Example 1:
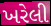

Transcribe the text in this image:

ખરેલી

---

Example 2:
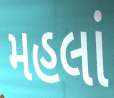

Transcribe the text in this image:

મહલાં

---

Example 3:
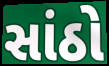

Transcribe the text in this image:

સાંઠો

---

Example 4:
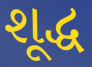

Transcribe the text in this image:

શૂદ્ધ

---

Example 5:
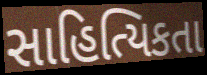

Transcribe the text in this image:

સાહિત્યિકતા